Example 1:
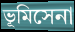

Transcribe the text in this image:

ভূমিসেনা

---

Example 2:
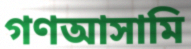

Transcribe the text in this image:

গণআসামি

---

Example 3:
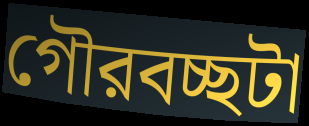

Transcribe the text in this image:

গৌরবচ্ছটা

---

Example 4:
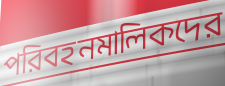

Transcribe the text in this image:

পরিবহনমালিকদের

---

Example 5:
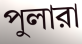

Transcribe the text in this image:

পুলারা